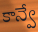
కాన్వే